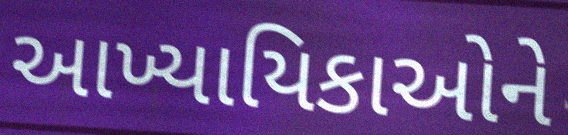
આખ્યાયિકાઓને